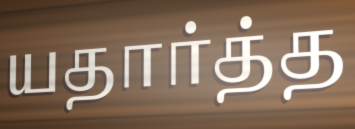
யதார்த்த